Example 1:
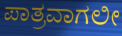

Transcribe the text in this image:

ಪಾತ್ರವಾಗಲೀ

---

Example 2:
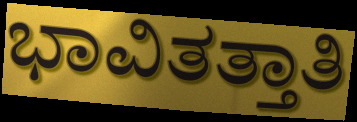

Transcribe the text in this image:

ಭಾವಿತತ್ತಾತಿ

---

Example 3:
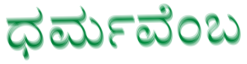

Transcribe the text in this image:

ಧರ್ಮವೆಂಬ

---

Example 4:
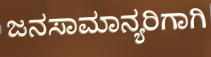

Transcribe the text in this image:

ಜನಸಾಮಾನ್ಯರಿಗಾಗಿ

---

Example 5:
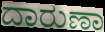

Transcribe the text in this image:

ದಾರುಣಾ